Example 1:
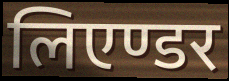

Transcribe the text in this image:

लिएण्डर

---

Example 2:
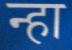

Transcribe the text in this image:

न्हा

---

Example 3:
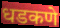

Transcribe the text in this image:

धडकणे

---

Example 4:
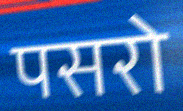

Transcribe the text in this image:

पसरो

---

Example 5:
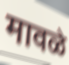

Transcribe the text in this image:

मावळे